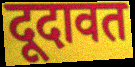
दूदावत